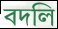
বদলি